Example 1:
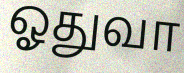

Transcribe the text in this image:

ஓதுவா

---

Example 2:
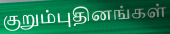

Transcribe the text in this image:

குறும்புதினங்கள்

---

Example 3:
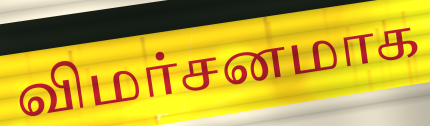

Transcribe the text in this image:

விமர்சனமாக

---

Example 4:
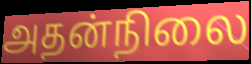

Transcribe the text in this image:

அதன்நிலை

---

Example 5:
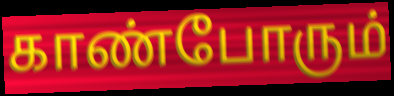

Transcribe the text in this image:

காண்போரும்